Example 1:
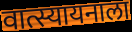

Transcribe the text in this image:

वात्स्यायनाला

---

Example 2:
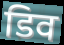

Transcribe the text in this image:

डिव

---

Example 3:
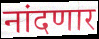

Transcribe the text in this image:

नांदणार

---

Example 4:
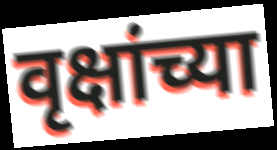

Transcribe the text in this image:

वृक्षांच्या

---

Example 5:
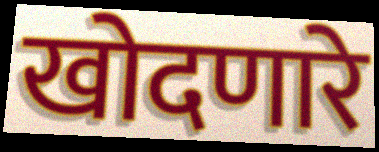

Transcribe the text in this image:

खोदणारे